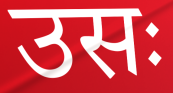
उसः